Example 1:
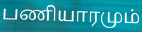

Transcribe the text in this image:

பணியாரமும்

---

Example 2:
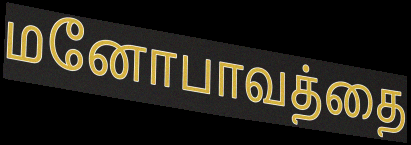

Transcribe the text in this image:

மனோபாவத்தை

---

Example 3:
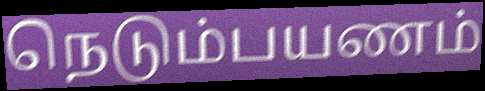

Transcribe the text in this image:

நெடும்பயணம்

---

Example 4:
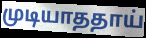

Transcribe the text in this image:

முடியாததாய்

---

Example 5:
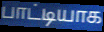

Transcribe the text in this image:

பாட்டியாக